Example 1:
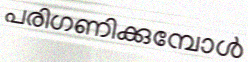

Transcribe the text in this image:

പരിഗണിക്കുമ്പോൾ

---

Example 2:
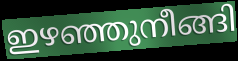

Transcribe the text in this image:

ഇഴഞ്ഞുനീങ്ങി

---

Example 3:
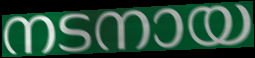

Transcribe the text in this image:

നടനായ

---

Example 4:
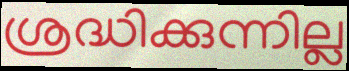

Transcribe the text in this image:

ശ്രദ്ധിക്കുന്നില്ല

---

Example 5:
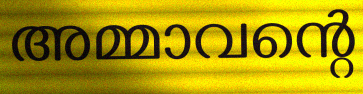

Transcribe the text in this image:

അമ്മാവന്റെ